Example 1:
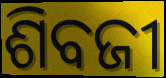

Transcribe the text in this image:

ଶିବଜୀ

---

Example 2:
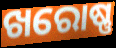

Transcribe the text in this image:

ଖରୋଷ୍ଣ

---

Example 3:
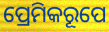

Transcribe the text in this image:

ପ୍ରେମିକରୂପେ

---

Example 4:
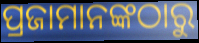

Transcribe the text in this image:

ପ୍ରଜାମାନଙ୍କଠାରୁ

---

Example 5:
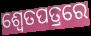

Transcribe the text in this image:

ଶ୍ଵେତପତ୍ରରେ